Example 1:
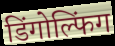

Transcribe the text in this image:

डिंगोल्फिंग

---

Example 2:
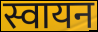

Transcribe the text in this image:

स्वायन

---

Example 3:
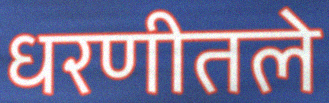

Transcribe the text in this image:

धरणीतले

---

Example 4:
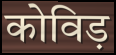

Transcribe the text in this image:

कोविड़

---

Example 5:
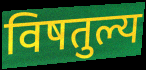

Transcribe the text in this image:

विषतुल्य